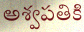
అశ్వపతికి